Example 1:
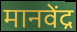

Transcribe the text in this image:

मानवेंद्र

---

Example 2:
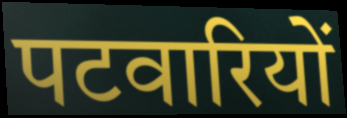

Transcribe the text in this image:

पटवारियों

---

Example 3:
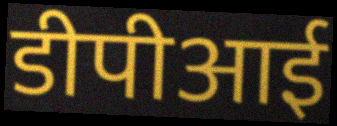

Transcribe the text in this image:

डीपीआई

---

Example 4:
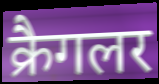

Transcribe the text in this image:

क्रैगलर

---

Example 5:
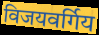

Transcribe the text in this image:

विजयवर्गिय